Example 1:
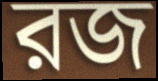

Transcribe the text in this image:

রজ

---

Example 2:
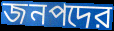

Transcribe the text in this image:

জনপদের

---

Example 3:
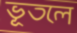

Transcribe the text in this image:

ভূতলে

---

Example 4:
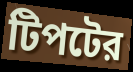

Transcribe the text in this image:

টিপটের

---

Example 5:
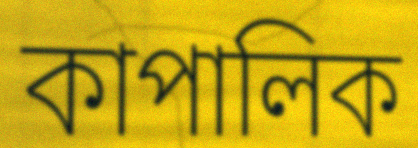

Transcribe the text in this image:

কাপালিক